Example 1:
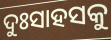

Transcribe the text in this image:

ଦୁଃସାହସକୁ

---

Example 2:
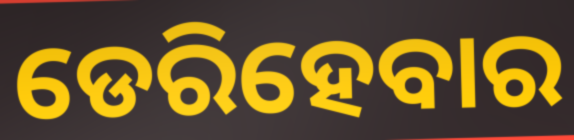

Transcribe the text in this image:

ଡେରିହେବାର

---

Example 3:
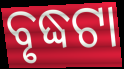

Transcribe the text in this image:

ବୃଦ୍ଧଟା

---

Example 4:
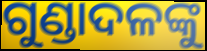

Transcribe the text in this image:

ଗୁଣ୍ଡାଦଳଙ୍କୁ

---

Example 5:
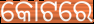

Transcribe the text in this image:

କୋଟରେ